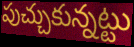
పుచ్చుకున్నట్టు